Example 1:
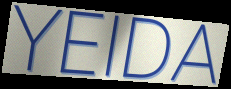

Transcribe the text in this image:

YEIDA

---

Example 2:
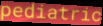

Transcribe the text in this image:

pediatric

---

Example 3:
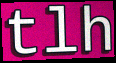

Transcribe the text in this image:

tlh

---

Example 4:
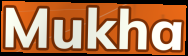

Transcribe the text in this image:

Mukha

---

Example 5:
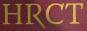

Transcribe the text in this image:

HRCT